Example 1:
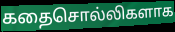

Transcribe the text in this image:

கதைசொல்லிகளாக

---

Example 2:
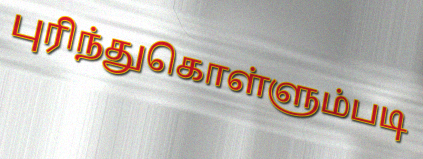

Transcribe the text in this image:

புரிந்துகொள்ளும்படி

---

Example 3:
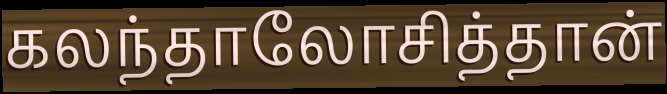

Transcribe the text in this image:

கலந்தாலோசித்தான்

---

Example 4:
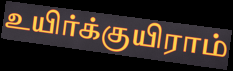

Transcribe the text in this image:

உயிர்க்குயிராம்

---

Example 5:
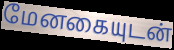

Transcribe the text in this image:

மேனகையுடன்